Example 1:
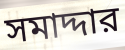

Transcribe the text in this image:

সমাদ্দার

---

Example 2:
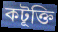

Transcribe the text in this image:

কটূক্তি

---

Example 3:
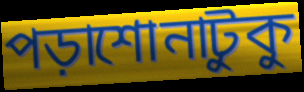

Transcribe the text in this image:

পড়াশোনাটুকু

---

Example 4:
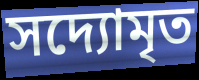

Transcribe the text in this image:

সদ্যোমৃত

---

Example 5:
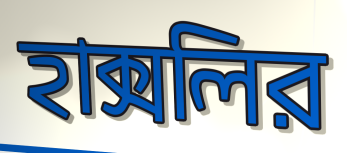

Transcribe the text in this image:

হাক্সলির